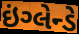
ઇંગ્લેન્ડે